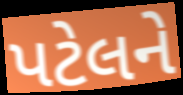
પટેલને